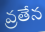
వ్రతేన